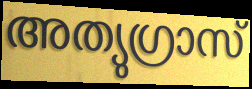
അത്യുഗ്രാസ്